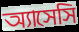
অ্যাসেসি